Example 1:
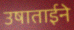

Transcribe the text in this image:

उषाताईने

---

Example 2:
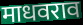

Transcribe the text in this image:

माधवराव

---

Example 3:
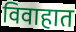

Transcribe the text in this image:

विवाहात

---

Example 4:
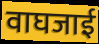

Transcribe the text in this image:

वाघजाई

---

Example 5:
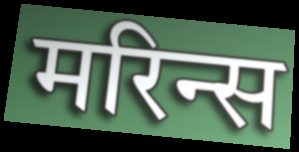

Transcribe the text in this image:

मरिन्स